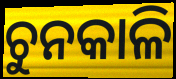
ଚୁନକାଳି